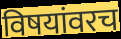
विषयांवरच